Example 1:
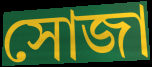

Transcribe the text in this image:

সোজা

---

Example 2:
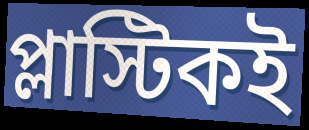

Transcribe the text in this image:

প্লাস্টিকই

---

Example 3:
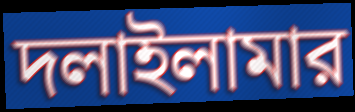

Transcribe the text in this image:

দলাইলামার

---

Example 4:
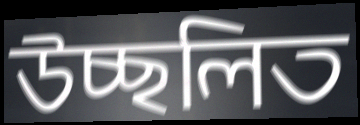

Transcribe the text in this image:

উচ্ছলিত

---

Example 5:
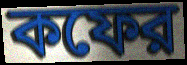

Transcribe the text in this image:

কফের